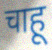
चाहू